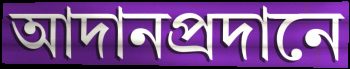
আদানপ্রদানে